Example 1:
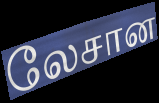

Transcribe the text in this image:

லேசான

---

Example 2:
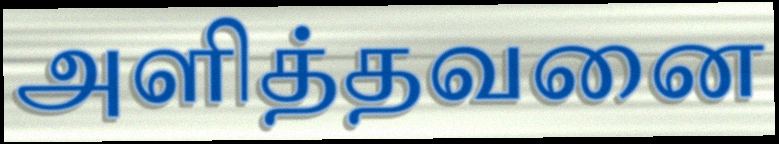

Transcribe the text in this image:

அளித்தவனை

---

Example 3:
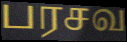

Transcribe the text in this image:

பரசவ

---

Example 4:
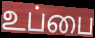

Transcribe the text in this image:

உப்பை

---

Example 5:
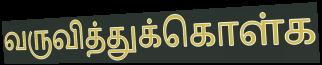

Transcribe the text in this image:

வருவித்துக்கொள்க